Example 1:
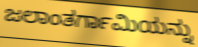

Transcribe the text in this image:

ಜಲಾಂತರ್ಗಾಮಿಯನ್ನು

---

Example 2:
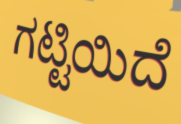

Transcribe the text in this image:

ಗಟ್ಟಿಯಿದೆ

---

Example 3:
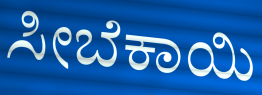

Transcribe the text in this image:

ಸೀಬೆಕಾಯಿ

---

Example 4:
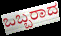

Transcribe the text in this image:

ಒಬ್ಬರಾದ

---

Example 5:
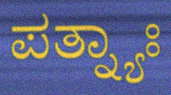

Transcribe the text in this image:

ಪತ್ನ್ಯಾಃ